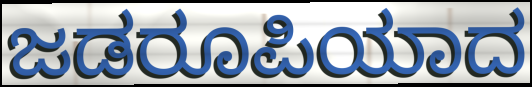
ಜಡರೂಪಿಯಾದ